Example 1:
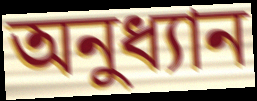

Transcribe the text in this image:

অনুধ্যান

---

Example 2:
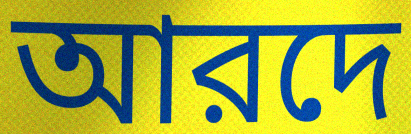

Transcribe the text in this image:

আরদে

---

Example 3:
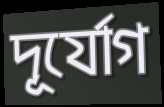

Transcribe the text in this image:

দূর্যোগ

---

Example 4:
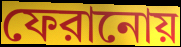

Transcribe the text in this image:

ফেরানোয়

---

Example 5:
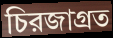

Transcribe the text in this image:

চিরজাগ্রত